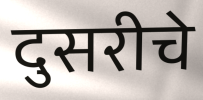
दुसरीचे